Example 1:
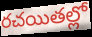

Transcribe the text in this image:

రచయితల్లో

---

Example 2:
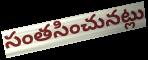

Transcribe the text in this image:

సంతసించునట్లు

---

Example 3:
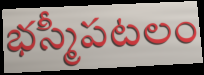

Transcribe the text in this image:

భస్మీపటలం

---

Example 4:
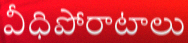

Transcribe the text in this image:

వీధిపోరాటాలు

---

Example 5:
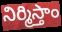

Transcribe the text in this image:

నిర్మిస్తాం